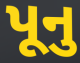
પૂનુ